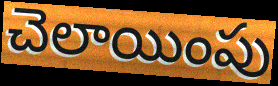
చెలాయింపు